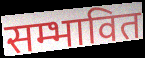
सम्भावित